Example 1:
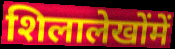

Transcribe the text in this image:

शिलालेखोंमें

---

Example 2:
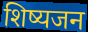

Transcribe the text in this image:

शिष्यजन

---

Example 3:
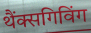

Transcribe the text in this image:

थैंक्सगिविंग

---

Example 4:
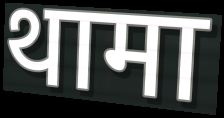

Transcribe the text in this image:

थामा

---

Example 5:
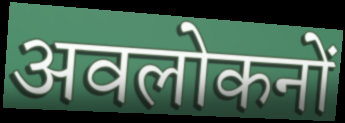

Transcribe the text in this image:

अवलोकनों